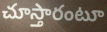
చూస్తారంటూ